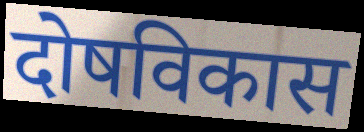
दोषविकास